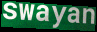
swayan